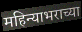
महिन्याभराच्या